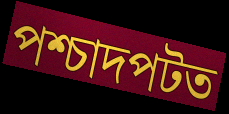
পশ্চাদপটত